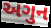
અગુન